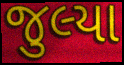
જુલ્યા